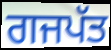
ਗਜਪੱਤ